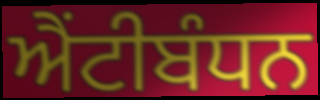
ਐਂਟੀਬੰਧਨ